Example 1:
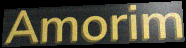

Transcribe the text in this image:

Amorim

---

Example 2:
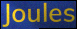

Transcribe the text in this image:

Joules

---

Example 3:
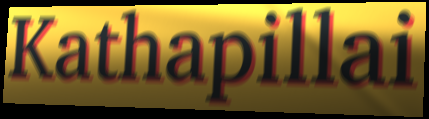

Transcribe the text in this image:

Kathapillai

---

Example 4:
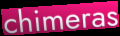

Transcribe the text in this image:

chimeras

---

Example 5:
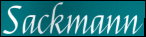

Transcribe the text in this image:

Sackmann